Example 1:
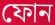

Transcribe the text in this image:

ফোন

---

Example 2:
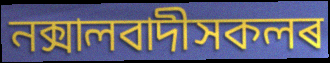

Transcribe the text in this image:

নক্সালবাদীসকলৰ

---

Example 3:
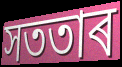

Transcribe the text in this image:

সততাৰ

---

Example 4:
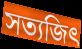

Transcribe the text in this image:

সত্যজিৎ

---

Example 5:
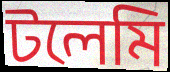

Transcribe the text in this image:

টলেমি